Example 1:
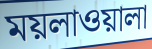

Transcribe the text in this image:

ময়লাওয়ালা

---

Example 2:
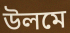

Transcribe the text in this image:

উলমে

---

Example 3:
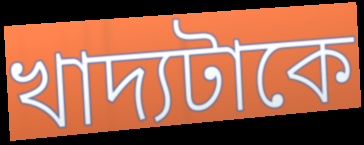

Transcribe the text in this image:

খাদ্যটাকে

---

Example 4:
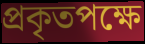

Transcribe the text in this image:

প্রকৃতপক্ষে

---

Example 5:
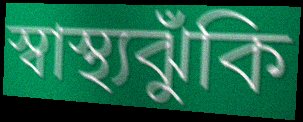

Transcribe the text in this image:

স্বাস্থ্যঝুঁকি